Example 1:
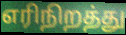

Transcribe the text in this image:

எரிநிறத்து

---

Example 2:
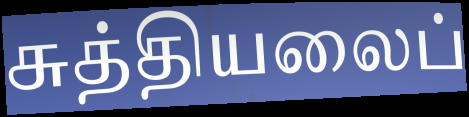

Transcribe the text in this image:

சுத்தியலைப்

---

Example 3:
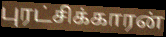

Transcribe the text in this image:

புரட்சிக்காரன்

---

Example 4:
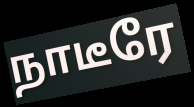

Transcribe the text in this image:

நாடீரே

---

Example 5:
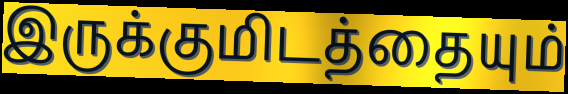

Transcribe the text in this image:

இருக்குமிடத்தையும்